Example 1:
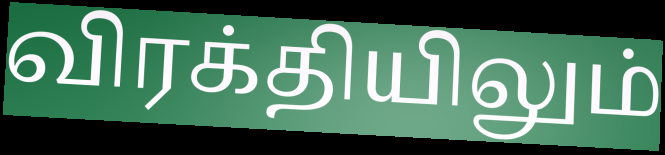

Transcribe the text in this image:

விரக்தியிலும்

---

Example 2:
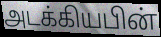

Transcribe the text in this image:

அடக்கியபின்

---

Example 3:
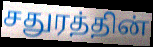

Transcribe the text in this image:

சதுரத்தின்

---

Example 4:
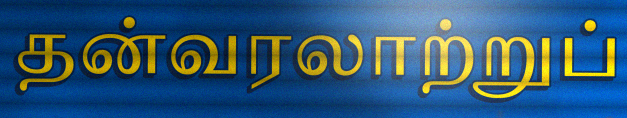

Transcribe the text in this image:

தன்வரலாற்றுப்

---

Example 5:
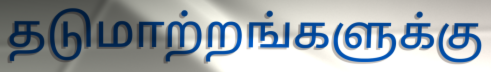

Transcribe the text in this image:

தடுமாற்றங்களுக்கு